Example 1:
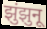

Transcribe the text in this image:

झुंझुनू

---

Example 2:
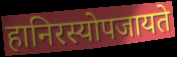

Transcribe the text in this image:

हानिरस्योपजायते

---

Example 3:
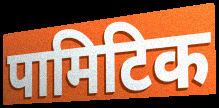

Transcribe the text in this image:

पामिटिक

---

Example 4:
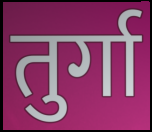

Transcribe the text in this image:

तुर्गा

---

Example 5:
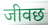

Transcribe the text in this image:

जीवछ